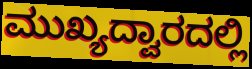
ಮುಖ್ಯದ್ವಾರದಲ್ಲಿ